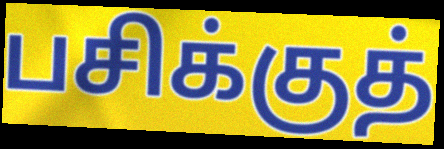
பசிக்குத்